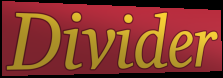
Divider